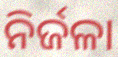
ନିର୍ଜଳା